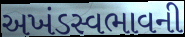
અખંડસ્વભાવની